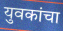
युवकांचा